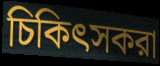
চিকিৎসকরা